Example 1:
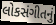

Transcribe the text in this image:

લોકસંગીતનું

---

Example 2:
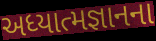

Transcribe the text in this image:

અધ્યાત્મજ્ઞાનના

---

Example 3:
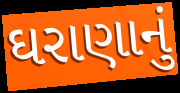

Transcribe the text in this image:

ઘરાણાનું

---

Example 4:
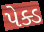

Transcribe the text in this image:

પેક્ડ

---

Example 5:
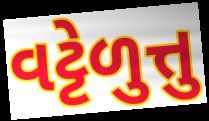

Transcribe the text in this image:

વટ્ટેળુત્તુ